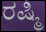
ರಷ್ಮಿ